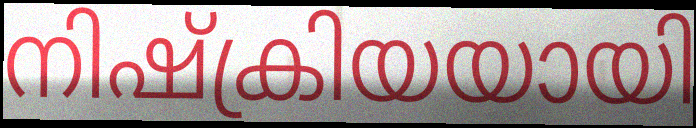
നിഷ്ക്രിയയായി